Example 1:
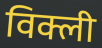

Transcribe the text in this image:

विक्ली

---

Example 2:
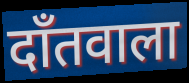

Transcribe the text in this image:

दाँतवाला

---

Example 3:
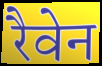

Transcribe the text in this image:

रैवेन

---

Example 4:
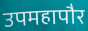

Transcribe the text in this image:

उपमहापौर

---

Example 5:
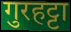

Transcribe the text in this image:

गुरहट्टा